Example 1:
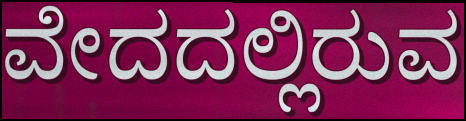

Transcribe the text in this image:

ವೇದದಲ್ಲಿರುವ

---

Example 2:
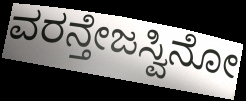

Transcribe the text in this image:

ವರನ್ತೇಜಸ್ವಿನೋ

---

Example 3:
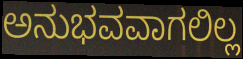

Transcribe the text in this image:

ಅನುಭವವಾಗಲಿಲ್ಲ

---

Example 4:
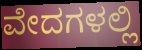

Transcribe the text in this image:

ವೇದಗಳಲ್ಲಿ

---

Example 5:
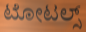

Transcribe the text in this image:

ಟೋಟಲ್ಸ್